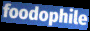
foodophile